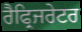
ਰੈਫ੍ਰਿਜਰੇਟਰ